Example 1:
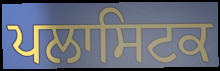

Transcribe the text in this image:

ਪਲਾਸਿਟਕ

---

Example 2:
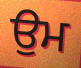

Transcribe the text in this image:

ਉਮ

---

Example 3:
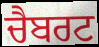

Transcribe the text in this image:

ਚੈਬਰਟ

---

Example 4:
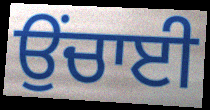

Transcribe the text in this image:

ਉਂਚਾਈ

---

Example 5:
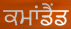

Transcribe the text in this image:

ਕਮਾਂਡੈਂਡ